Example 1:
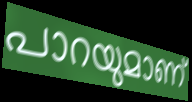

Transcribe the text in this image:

പാറയുമാണ്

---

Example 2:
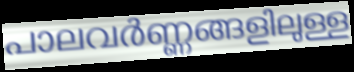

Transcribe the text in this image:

പാലവർണ്ണങ്ങളിലുള്ള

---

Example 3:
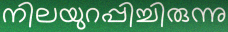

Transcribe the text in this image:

നിലയുറപ്പിച്ചിരുന്നു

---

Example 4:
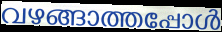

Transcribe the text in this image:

വഴങ്ങാത്തപ്പോൾ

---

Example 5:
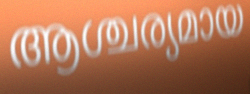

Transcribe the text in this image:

ആശ്ചര്യമായ